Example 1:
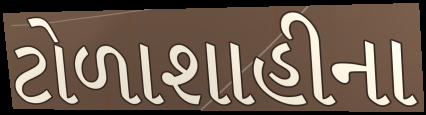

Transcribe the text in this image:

ટોળાશાહીના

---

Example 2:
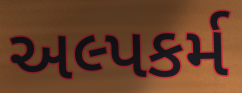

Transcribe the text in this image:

અલ્પકર્મ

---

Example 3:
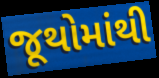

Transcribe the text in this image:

જૂથોમાંથી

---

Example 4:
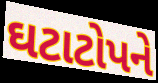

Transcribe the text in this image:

ઘટાટોપને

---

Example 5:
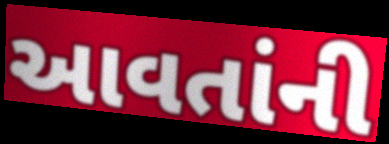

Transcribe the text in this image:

આવતાંની